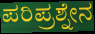
ಪರಿಪ್ರಶ್ನೇನ